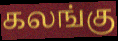
கலங்கு